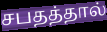
சபதத்தால்